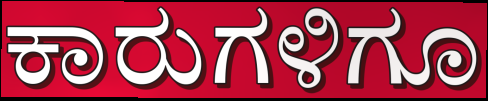
ಕಾರುಗಳಿಗೂ